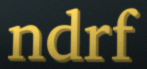
ndrf